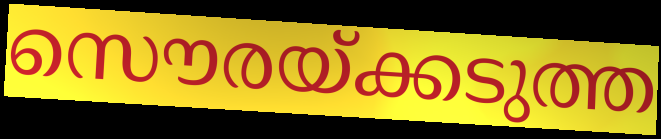
സൌരയ്ക്കടുത്ത